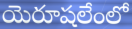
యెరూషలేంలో